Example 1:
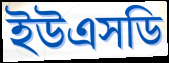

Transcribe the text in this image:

ইউএসডি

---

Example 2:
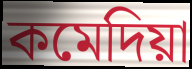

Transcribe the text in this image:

কমেদিয়া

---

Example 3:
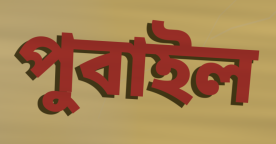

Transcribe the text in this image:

পুবাইল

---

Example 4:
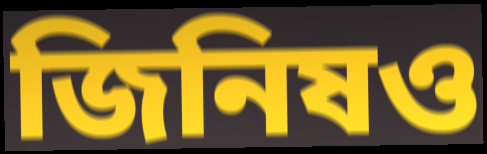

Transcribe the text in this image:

জিনিষও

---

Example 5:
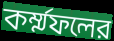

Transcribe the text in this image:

কর্ম্মফলের